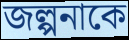
জল্পনাকে